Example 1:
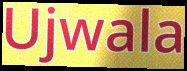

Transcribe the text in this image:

Ujwala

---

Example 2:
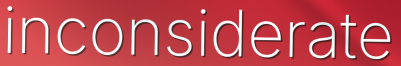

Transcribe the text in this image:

inconsiderate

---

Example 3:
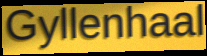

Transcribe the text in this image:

Gyllenhaal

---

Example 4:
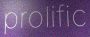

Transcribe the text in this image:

prolific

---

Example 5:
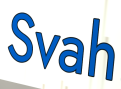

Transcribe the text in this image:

Svah